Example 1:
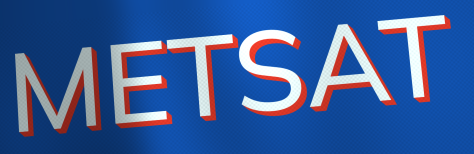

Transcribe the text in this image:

METSAT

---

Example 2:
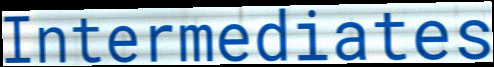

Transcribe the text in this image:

Intermediates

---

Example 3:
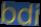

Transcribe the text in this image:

bdi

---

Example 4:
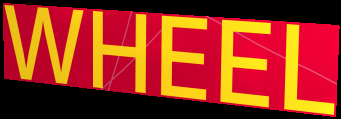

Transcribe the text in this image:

WHEEL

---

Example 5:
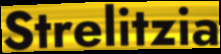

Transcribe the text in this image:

Strelitzia